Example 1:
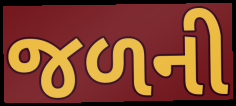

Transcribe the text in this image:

જળની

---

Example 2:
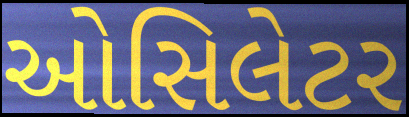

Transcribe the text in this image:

ઓસિલેટર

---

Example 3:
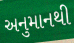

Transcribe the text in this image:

અનુમાનથી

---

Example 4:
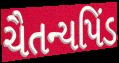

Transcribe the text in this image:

ચૈતન્યપિંડ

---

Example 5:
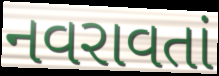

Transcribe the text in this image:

નવરાવતાં